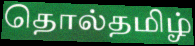
தொல்தமிழ்